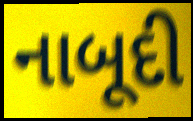
નાબૂદી